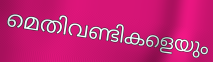
മെതിവണ്ടികളെയും